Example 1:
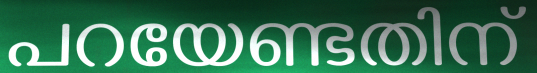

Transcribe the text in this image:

പറയേണ്ടതിന്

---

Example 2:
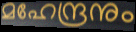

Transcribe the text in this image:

മഹേന്ദ്രനും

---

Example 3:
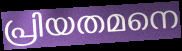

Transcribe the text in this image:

പ്രിയതമനെ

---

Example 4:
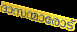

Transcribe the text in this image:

ദാസന്മാരോട്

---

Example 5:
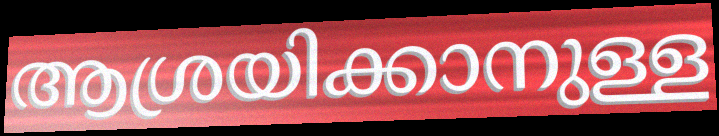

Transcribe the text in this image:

ആശ്രയിക്കാനുള്ള